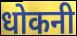
धोकनी